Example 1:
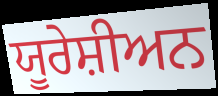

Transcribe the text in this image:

ਯੂਰੇਸ਼ੀਅਨ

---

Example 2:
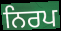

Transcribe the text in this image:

ਨਿਰਪ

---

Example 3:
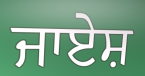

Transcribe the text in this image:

ਜਾਏਸ਼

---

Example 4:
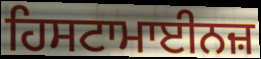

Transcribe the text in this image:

ਹਿਸਟਾਮਾਈਨਜ਼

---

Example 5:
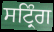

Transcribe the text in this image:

ਸਟ੍ਰਿੰਗ